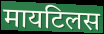
मायटिलस